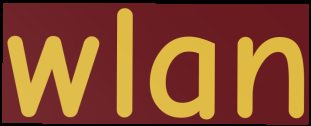
wlan